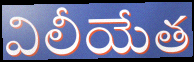
విలీయేత